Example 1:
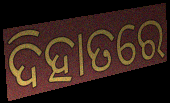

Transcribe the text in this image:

ଦିହାତରେ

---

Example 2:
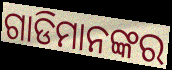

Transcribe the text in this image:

ଗାଡିମାନଙ୍କର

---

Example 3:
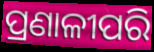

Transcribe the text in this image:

ପ୍ରଣାଳୀପରି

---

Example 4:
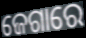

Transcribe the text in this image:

ଜେଗାରେ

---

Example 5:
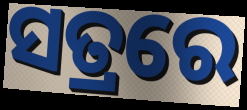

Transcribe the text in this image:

ସତ୍ରରେ